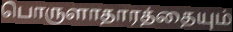
பொருளாதாரத்தையும்